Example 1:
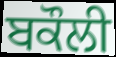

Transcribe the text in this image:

ਬਕੌਲੀ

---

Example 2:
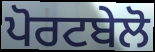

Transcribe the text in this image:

ਪੋਰਟਬੇਲੋ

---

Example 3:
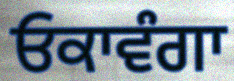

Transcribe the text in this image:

ਓਕਾਵੰਗਾ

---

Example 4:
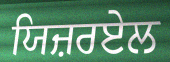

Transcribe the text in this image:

ਯਿਜ਼ਰਏਲ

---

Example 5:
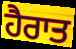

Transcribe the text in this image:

ਹੈਰਾਤ